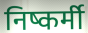
निष्कर्मी